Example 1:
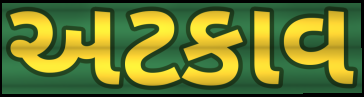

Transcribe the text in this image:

અટકાવ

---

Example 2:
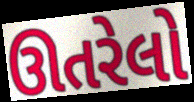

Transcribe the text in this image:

ઊતરેલો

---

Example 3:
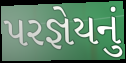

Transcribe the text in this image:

પરજ્ઞેયનું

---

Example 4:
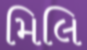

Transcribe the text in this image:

મિલિ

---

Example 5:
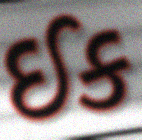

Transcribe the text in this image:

ઈક